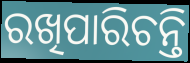
ରଖିପାରିଚନ୍ତି